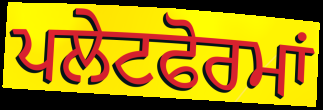
ਪਲੇਟਫੋਰਮਾਂ